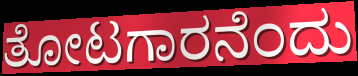
ತೋಟಗಾರನೆಂದು